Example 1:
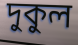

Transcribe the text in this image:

দুকুল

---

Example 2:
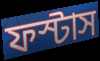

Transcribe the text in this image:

ফস্টাস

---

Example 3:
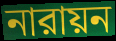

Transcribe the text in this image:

নারায়ন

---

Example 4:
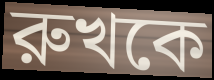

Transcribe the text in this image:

রুখকে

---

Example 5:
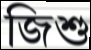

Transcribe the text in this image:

জিশু